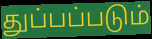
துப்பப்படும்